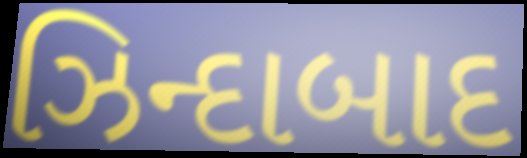
ઝિન્દાબાદ